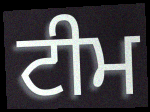
ਟੀਮ